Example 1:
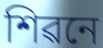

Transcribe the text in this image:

শিৱনে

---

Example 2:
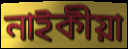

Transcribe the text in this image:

নাইকীয়া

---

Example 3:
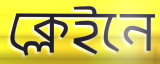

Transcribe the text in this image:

ক্লেইনে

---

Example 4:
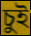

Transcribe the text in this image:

চুই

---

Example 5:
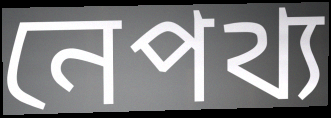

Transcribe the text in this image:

নেপথ্য